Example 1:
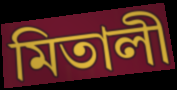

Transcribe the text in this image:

মিতালী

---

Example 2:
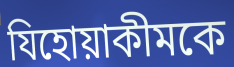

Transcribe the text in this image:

যিহোয়াকীমকে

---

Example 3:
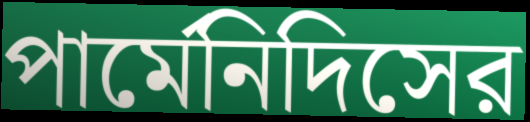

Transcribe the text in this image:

পার্মেনিদিসের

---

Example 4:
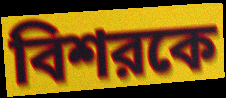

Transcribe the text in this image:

বিশরকে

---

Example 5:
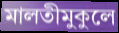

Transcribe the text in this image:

মালতীমুকুলে